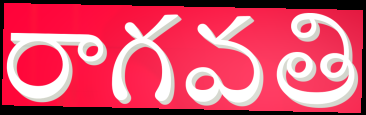
రాగవతి